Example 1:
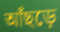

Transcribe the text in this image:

আঁছড়ে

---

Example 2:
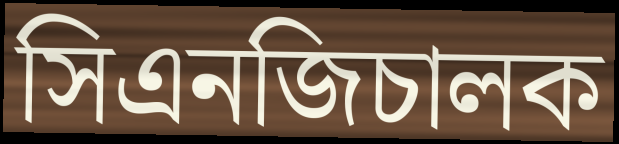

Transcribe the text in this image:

সিএনজিচালক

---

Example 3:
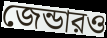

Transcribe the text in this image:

জেন্ডারও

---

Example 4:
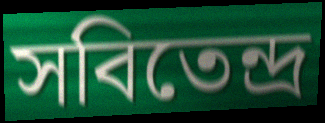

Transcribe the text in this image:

সবিতেন্দ্র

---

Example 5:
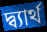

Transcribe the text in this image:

দ্ব্যার্থ